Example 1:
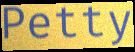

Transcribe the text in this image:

Petty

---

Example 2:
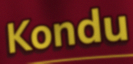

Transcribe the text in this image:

Kondu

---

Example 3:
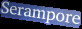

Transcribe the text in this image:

Serampore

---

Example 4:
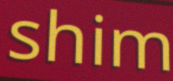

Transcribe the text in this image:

shim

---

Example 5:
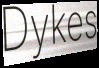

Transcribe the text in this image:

Dykes